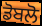
ਡੋਬਲੋ